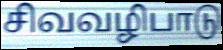
சிவவழிபாடு